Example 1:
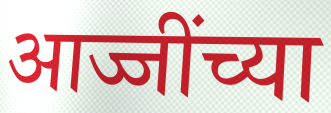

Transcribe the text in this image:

आज्जींच्या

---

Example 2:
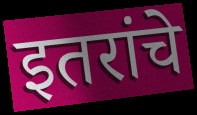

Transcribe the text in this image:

इतरांचे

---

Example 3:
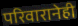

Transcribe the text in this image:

परिवारानेही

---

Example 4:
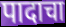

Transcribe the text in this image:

पादाचा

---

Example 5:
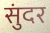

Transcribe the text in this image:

सुंदर